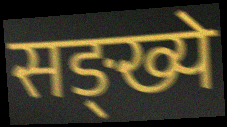
सङ्ख्ये